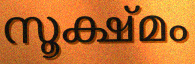
സൂക്ഷ്‌മം